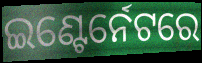
ଇଣ୍ଟେର୍ନେଟରେ